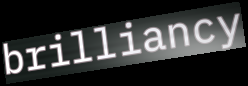
brilliancy